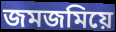
জমজমিয়ে